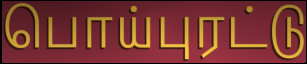
பொய்புரட்டு